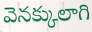
వెనక్కులాగి